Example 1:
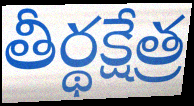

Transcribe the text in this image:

తీర్థక్షేత్ర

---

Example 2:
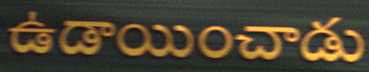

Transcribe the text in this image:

ఉడాయించాడు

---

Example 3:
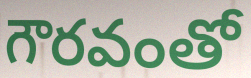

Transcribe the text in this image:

గౌరవంతో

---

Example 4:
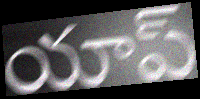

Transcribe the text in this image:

యాప్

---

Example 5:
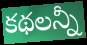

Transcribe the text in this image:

కథలన్నీ